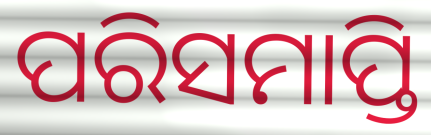
ପରିସମାପ୍ତି